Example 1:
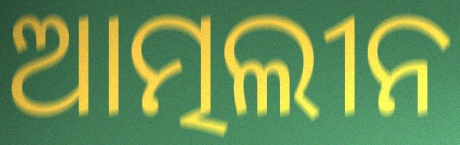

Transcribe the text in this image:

ଆତ୍ମଲୀନ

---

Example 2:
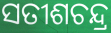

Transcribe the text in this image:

ସତୀଶଚନ୍ଦ୍ର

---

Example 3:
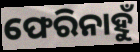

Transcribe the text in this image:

ଫେରିନାହୁଁ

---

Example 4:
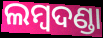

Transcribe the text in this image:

ଲମ୍ୱଦଣ୍ଡା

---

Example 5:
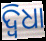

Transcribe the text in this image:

ଦ୍ବିଧା